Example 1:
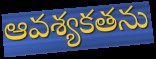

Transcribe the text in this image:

ఆవశ్యకతను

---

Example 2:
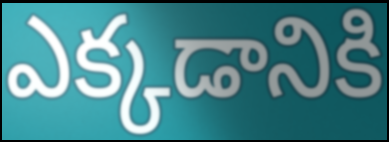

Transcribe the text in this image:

ఎక్కడానికి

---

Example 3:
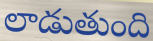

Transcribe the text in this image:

లాడుతుంది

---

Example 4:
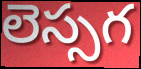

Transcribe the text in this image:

లెస్సగ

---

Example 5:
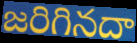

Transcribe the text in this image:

జరిగినదా